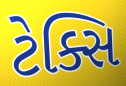
ટેક્સિ